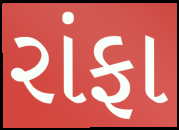
રાંફા